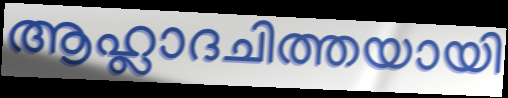
ആഹ്ലാദചിത്തയായി